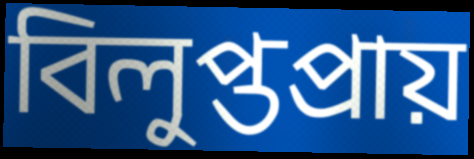
বিলুপ্তপ্রায়